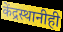
केंद्रस्थानीही